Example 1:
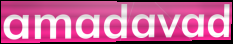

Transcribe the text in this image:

amadavad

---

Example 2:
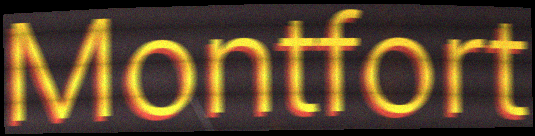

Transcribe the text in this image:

Montfort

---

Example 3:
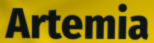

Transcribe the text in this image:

Artemia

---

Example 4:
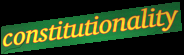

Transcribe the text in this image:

constitutionality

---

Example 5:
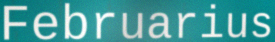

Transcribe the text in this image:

Februarius